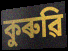
কুৰুৱি